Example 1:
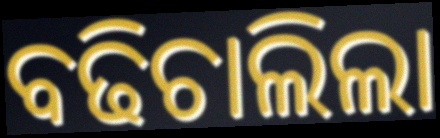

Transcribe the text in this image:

ବଢିଚାଲିଲା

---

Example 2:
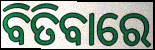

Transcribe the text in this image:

ବିତିବାରେ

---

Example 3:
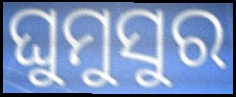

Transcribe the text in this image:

ଘୁମୁସୁର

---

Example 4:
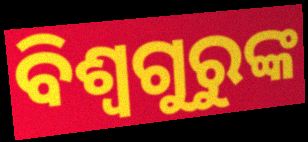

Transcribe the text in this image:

ବିଶ୍ୱଗୁରୁଙ୍କ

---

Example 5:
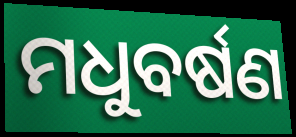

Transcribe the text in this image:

ମଧୁବର୍ଷଣ